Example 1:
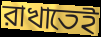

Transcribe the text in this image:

রাখাতেই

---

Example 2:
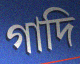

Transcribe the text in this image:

গাদি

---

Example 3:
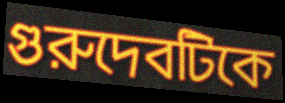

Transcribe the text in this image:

গুরুদেবটিকে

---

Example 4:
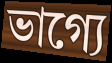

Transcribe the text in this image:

ভাগ্যে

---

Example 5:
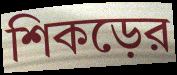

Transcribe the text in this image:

শিকড়ের